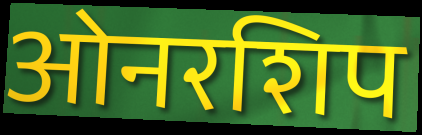
ओनरशिप